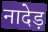
नादेड़